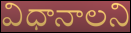
విధానాలని